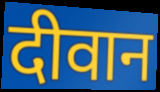
दीवान